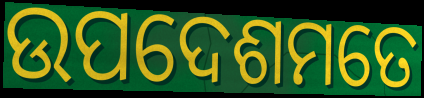
ଉପଦେଶମତେ